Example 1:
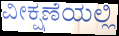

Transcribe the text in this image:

ವೀಕ್ಷಣೆಯಲ್ಲಿ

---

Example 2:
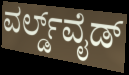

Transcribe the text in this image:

ವರ್ಲ್ಡ್‌ವೈಡ್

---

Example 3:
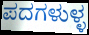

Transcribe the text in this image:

ಪದಗಳುಳ್ಳ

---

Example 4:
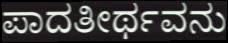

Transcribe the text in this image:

ಪಾದತೀರ್ಥವನು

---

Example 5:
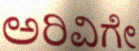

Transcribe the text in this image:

ಅರಿವಿಗೇ